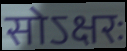
सोऽक्षरः